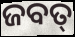
ଜବତ୍